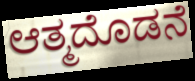
ಆತ್ಮದೊಡನೆ